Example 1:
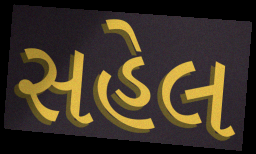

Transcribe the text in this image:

સહેલ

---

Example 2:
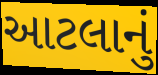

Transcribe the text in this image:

આટલાનું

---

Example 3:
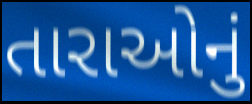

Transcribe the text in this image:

તારાઓનું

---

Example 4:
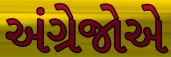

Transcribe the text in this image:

અંગ્રેજોએ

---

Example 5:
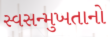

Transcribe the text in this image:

સ્વસન્મુખતાનો